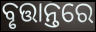
ବୃତ୍ତାନ୍ତରେ